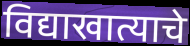
विद्याखात्याचे